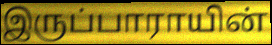
இருப்பாராயின்